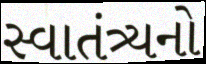
સ્વાતંત્ર્યનો